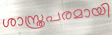
ശാസ്ത്രപരമായി